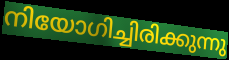
നിയോഗിച്ചിരിക്കുന്നു